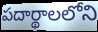
పదార్థాలలోని